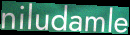
niludamle